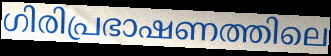
ഗിരിപ്രഭാഷണത്തിലെ